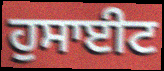
ਹੁਸਾਈਟ